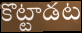
కొట్టాడట